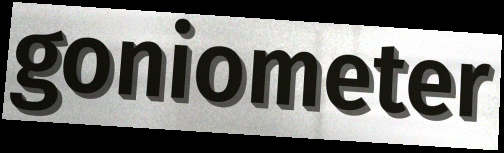
goniometer